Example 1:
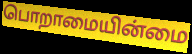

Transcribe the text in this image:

பொறாமையின்மை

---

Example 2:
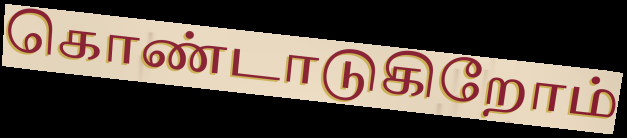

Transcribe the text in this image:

கொண்டாடுகிறோம்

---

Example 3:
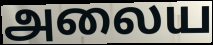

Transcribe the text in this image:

அலைய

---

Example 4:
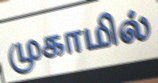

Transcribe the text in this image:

முகாமில்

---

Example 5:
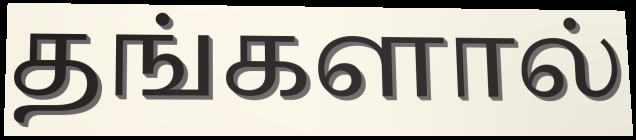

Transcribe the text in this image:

தங்களால்